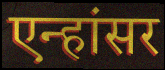
एन्हांसर